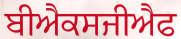
ਬੀਐਕਸਜੀਐਫ